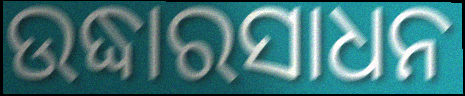
ଉଦ୍ଧାରସାଧନ